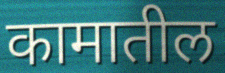
कामातील